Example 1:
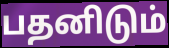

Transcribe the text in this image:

பதனிடும்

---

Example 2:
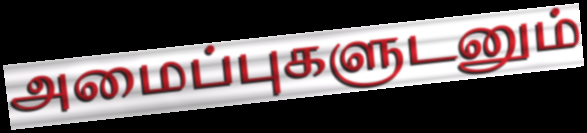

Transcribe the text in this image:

அமைப்புகளுடனும்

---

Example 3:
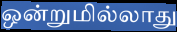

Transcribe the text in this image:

ஒன்றுமில்லாது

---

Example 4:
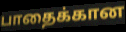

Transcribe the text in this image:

பாதைக்கான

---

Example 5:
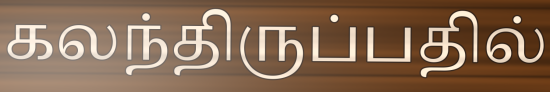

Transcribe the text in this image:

கலந்திருப்பதில்